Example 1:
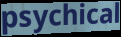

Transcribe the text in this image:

psychical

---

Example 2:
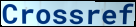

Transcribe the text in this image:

Crossref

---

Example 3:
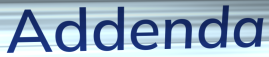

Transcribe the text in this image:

Addenda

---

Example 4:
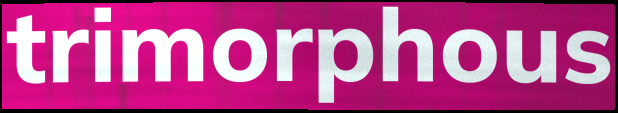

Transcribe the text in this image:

trimorphous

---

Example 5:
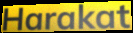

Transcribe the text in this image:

Harakat